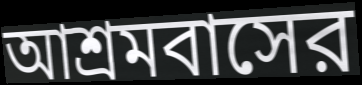
আশ্রমবাসের